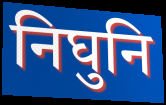
निघुनि